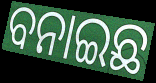
ବନାଇଛ